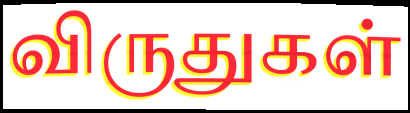
விருதுகள்